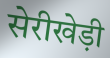
सेरीखेड़ी